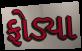
ફોડ્યા